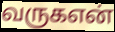
வருகஎன்